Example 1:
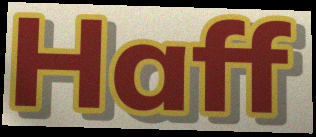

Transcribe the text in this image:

Haff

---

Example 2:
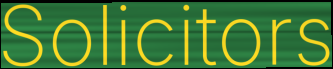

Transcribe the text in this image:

Solicitors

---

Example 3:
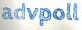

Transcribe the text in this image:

advpoll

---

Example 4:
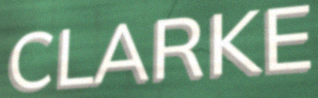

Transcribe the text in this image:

CLARKE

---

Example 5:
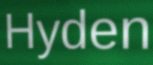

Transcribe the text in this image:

Hyden